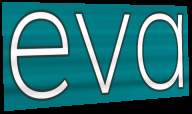
eva